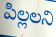
పిల్లలని